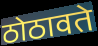
ठोठावते